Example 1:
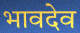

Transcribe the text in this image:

भावदेव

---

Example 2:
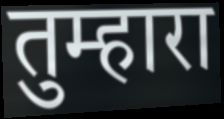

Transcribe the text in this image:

तुम्हारा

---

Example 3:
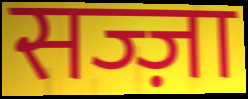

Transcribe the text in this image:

सज्ज़ा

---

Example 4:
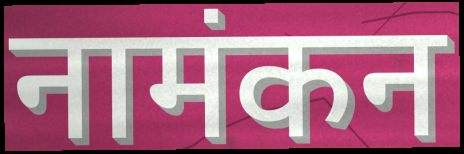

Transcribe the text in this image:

नामंकन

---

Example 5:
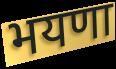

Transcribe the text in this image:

भयणा